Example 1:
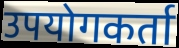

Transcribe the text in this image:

उपयोगकर्ता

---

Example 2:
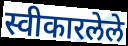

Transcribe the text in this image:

स्वीकारलेले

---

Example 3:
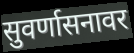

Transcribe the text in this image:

सुवर्णासनावर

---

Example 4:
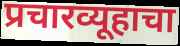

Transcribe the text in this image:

प्रचारव्यूहाचा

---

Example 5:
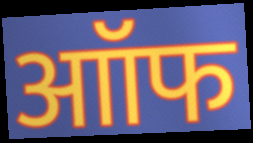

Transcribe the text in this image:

आॉफ